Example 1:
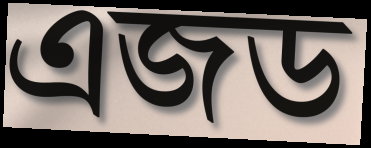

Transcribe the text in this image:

এজড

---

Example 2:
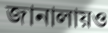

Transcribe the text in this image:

জানালায়ও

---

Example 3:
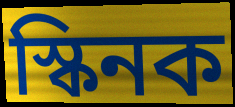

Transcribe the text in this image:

স্কিনক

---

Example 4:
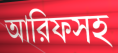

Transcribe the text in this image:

আরিফসহ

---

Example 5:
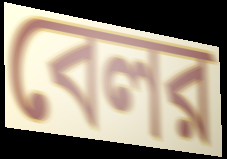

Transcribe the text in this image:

বেলর